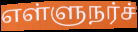
எள்ளுநர்ச்